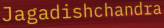
Jagadishchandra